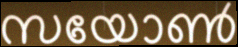
സയോൺ